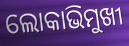
ଲୋକାଭିମୁଖୀ